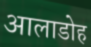
आलाडोह